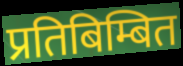
प्रतिबिम्बित